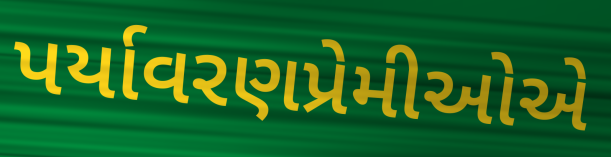
પર્યાવરણપ્રેમીઓએ